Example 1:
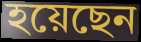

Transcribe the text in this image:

হয়েছেন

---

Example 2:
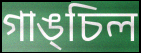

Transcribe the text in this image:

গাঙ্‌চিল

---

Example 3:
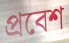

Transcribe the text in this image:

প্রবেশ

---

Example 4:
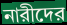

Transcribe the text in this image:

নারীদের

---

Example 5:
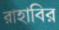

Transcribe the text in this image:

রাহাবির